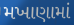
મખાણામાં